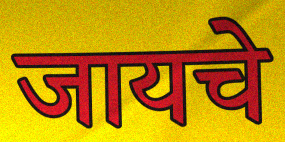
जायचे